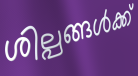
ശില്പങ്ങൾക്ക്